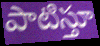
పాటిస్తూ